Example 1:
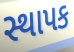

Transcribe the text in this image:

સ્થાપક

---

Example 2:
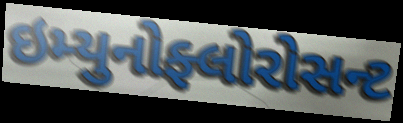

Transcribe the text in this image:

ઇમ્યુનોફ્લોરોસન્ટ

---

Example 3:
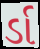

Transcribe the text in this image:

ર્ડા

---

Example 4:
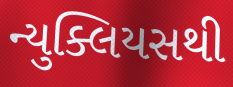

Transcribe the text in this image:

ન્યુક્લિયસથી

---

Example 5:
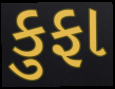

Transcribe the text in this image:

કુફા